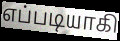
எப்படியாகி